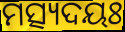
ମତ୍ସ୍ୟଦୟଃ